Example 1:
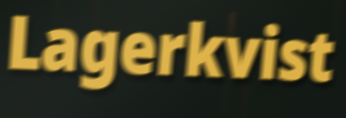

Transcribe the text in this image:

Lagerkvist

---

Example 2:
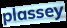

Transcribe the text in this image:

plassey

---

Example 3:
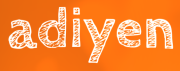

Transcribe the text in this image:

adiyen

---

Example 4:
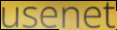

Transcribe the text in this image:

usenet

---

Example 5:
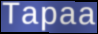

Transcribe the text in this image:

Tapaa